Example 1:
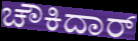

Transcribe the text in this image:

ಚೌಕಿದಾರ್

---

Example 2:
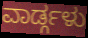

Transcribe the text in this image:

ವಾರ್ಡ್ಗಳು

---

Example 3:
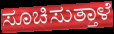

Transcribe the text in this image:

ಸೂಚಿಸುತ್ತಾಳೆ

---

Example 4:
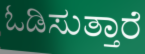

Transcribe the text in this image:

ಓಡಿಸುತ್ತಾರೆ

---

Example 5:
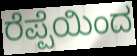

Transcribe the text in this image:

ರೆಪ್ಪೆಯಿಂದ